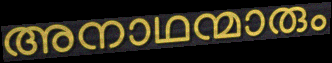
അനാഥന്മാരും